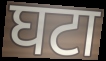
घटा